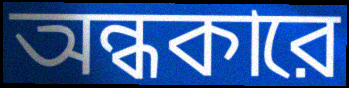
অন্ধকারে